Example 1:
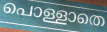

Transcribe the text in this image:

പൊള്ളാതെ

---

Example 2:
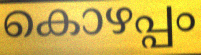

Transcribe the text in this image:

കൊഴപ്പം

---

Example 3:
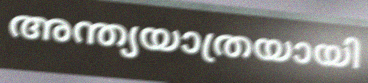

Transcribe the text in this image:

അന്ത്യയാത്രയായി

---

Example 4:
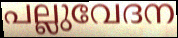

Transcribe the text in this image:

പല്ലുവേദന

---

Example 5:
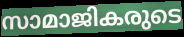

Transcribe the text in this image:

സാമാജികരുടെ